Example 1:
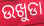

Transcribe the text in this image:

ଉଖୁଡା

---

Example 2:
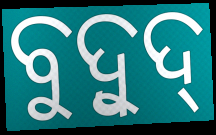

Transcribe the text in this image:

ବୁଦ୍ବୁଦ୍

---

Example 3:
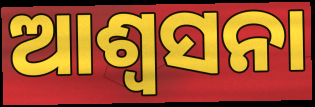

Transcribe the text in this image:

ଆଶ୍ୱସନା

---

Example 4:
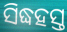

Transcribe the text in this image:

ସିଦ୍ଧହସ୍ତ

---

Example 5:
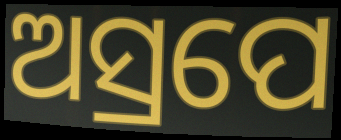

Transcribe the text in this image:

ଅସ୍ରପେ